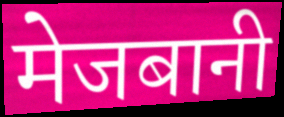
मेजबानी